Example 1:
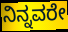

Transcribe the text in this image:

ನಿನ್ನವರೇ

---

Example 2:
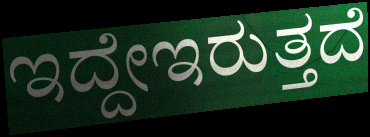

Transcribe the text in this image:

ಇದ್ದೇಇರುತ್ತದೆ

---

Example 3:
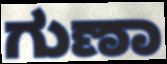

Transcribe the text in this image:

ಗುಣಾ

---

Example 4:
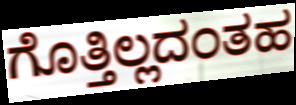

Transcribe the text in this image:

ಗೊತ್ತಿಲ್ಲದಂತಹ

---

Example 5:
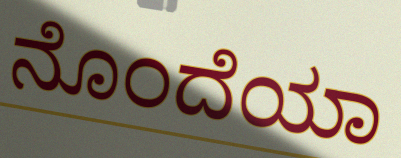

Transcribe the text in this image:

ನೊಂದೆಯಾ